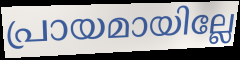
പ്രായമായില്ലേ